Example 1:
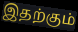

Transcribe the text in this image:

இதற்கும்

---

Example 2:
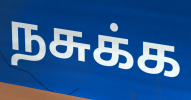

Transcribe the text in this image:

நசுக்க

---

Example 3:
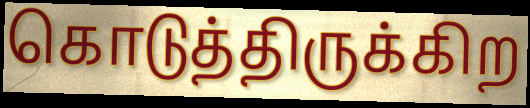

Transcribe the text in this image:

கொடுத்திருக்கிற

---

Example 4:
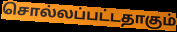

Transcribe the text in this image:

சொல்லப்பட்டதாகும்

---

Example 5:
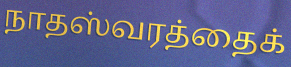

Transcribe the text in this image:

நாதஸ்வரத்தைக்